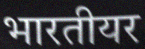
भारतीयर